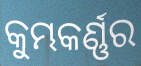
କୁମ୍ଭକର୍ଣ୍ଣର